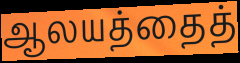
ஆலயத்தைத்